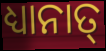
ଧ୍ୟାନାତ୍